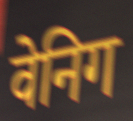
वेनिग